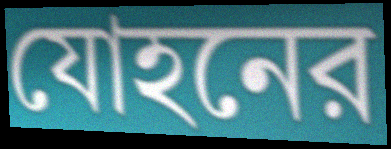
যোহনের